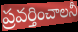
ప్రవర్తించాలనీ